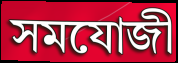
সমযোজী